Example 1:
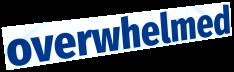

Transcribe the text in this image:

overwhelmed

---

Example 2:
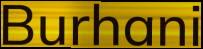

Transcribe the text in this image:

Burhani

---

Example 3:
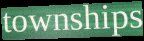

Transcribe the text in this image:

townships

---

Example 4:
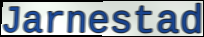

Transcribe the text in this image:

Jarnestad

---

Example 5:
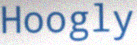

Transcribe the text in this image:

Hoogly